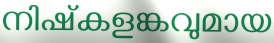
നിഷ്‌കളങ്കവുമായ